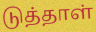
டுத்தாள்